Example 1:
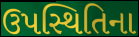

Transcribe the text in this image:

ઉપસ્થિતિના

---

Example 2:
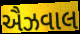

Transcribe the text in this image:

ઐઝવાલ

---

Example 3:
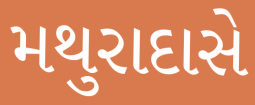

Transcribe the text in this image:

મથુરાદાસે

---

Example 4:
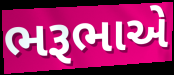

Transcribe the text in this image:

ભરૂભાએ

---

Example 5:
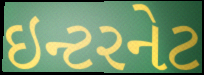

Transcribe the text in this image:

ઇન્ટરનેટ